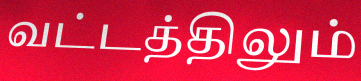
வட்டத்திலும்